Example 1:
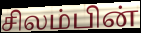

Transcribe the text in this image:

சிலம்பின்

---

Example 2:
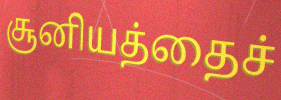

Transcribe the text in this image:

சூனியத்தைச்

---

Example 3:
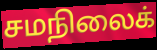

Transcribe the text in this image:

சமநிலைக்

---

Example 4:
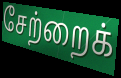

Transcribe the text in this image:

சேற்றைக்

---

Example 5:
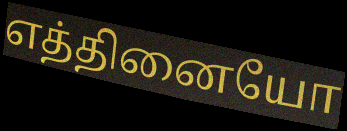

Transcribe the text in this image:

எத்தினையோ